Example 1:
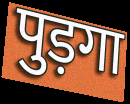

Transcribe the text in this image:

पुड़गा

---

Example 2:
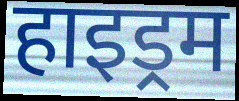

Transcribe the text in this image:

हाइड्रम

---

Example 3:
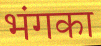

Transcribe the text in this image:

भंगका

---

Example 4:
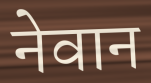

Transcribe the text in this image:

नेवान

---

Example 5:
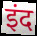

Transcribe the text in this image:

इंद